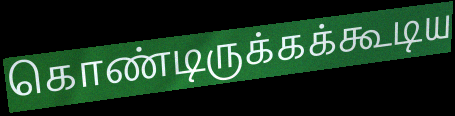
கொண்டிருக்கக்கூடிய